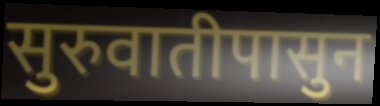
सुरुवातीपासुन